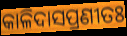
କାଳିଦାସପ୍ରଣୀତଃ